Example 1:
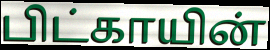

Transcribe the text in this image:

பிட்காயின்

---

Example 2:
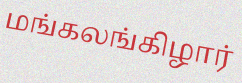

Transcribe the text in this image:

மங்கலங்கிழார்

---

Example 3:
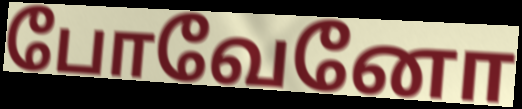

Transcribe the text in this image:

போவேனோ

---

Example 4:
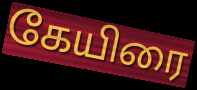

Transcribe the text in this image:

கேயிரை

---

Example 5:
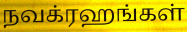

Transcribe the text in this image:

நவக்ரஹங்கள்